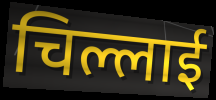
चिल्लाई